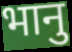
भानु